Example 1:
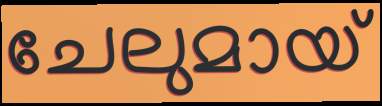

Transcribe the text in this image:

ചേലുമായ്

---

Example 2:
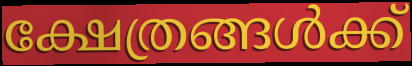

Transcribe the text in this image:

ക്ഷേത്രങ്ങൾക്ക്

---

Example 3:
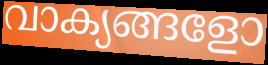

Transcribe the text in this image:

വാക്യങ്ങളോ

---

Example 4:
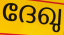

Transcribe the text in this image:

ദേഖു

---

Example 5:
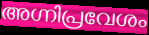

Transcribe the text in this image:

അഗ്നിപ്രവേശം